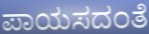
ಪಾಯಸದಂತೆ